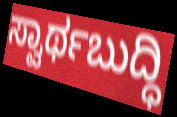
ಸ್ವಾರ್ಥಬುದ್ಧಿ